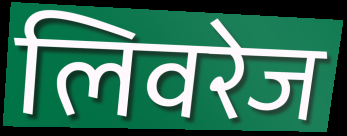
लिवरेज